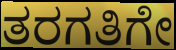
ತರಗತಿಗೇ